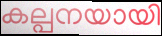
കല്പനയായി